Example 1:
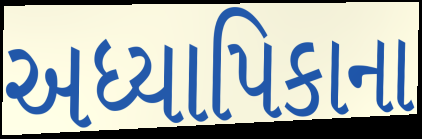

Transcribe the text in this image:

અધ્યાપિકાના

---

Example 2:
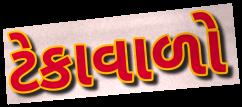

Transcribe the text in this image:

ટેકાવાળો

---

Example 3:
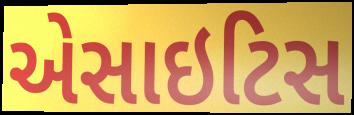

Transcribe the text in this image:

એસાઇટિસ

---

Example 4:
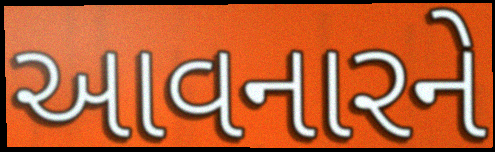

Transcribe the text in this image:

આવનારને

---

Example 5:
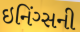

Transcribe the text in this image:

ઇનિંગ્સની